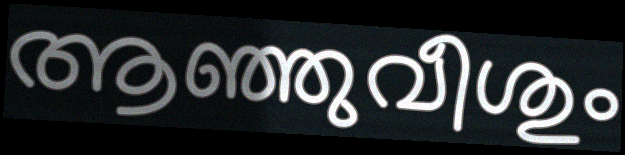
ആഞ്ഞുവീശും